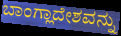
ಬಾಂಗ್ಲಾದೇಶವನ್ನು